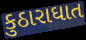
કુઠારાઘાત